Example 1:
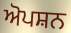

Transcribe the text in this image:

ਅੋਪਸ਼ਨ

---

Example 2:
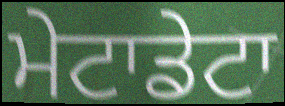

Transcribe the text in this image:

ਮੇਟਾਡੇਟਾ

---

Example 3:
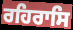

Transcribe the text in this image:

ਰਹਿਰਾਸਿ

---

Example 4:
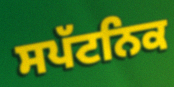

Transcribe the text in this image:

ਸਪੱਟਨਿਕ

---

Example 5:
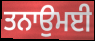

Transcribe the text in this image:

ਤਨਾਉਮਈ